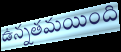
ఉన్నతమయింది